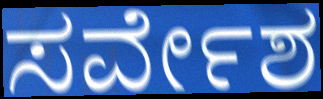
ಸರ್ವೇಶ